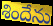
శిందేను